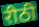
रीठी